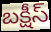
బక్షీస్